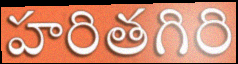
హరితగిరి